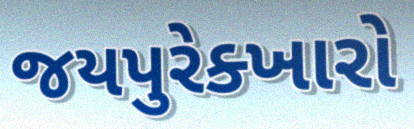
જયપુરેક્ખારો